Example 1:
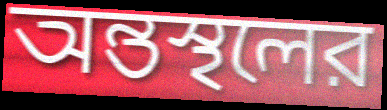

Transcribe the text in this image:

অন্তস্থলের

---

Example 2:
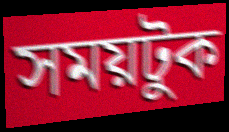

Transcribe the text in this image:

সময়টুক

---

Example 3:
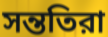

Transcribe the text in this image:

সন্ততিরা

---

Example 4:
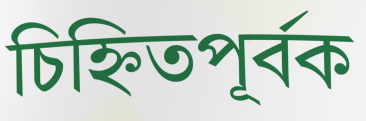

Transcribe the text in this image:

চিহ্নিতপূর্বক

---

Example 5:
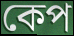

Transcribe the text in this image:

কেপ